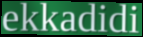
ekkadidi